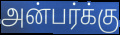
அன்பர்க்கு